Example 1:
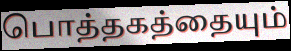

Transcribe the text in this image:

பொத்தகத்தையும்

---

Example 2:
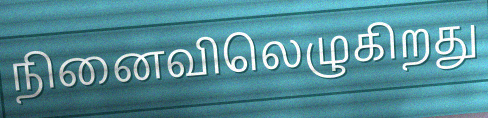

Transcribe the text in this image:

நினைவிலெழுகிறது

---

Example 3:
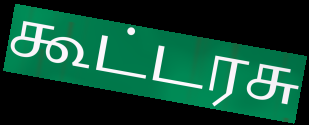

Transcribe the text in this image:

கூட்டரசு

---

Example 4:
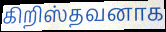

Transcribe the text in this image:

கிறிஸ்தவனாக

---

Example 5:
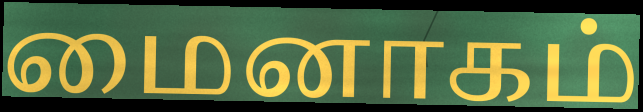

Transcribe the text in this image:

மைனாகம்